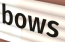
bows